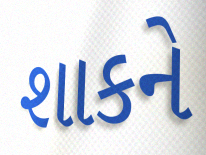
શાકને